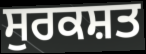
ਸੁਰਕਸ਼ਤ